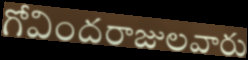
గోవిందరాజులవారు